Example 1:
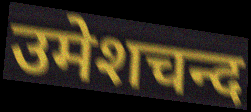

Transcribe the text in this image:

उमेशचन्द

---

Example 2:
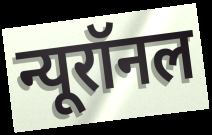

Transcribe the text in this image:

न्यूरॉनल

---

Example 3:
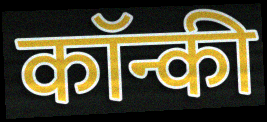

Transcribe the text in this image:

कॉन्की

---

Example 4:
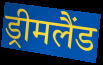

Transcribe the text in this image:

ड्रीमलैंड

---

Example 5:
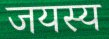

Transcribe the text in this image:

जयस्य